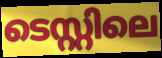
ടെസ്റ്റിലെ